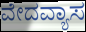
ವೇದವ್ಯಾಸ